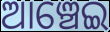
ଆଞ୍ଚେଇ